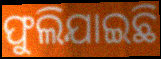
ଫୁଲିଯାଇଛି